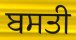
ਬਸਤੀ